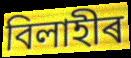
বিলাহীৰ